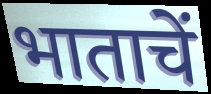
भाताचें